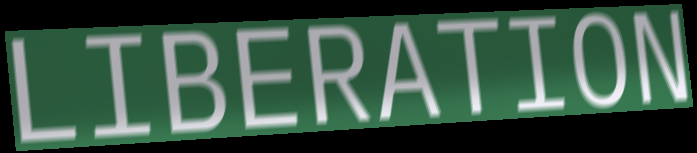
LIBERATION